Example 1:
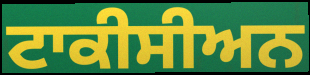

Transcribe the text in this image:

ਟਾਕੀਸੀਅਨ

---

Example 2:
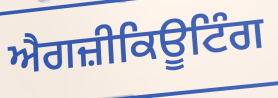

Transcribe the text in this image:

ਐਗਜ਼ੀਕਿਊਟਿੰਗ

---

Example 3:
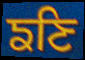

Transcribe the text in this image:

ਙਣਿ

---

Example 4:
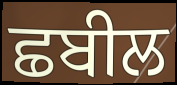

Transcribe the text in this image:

ਛਬੀਲ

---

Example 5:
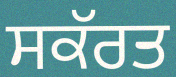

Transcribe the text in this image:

ਸਕੱਰਤ